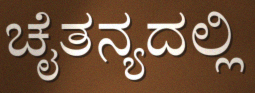
ಚೈತನ್ಯದಲ್ಲಿ